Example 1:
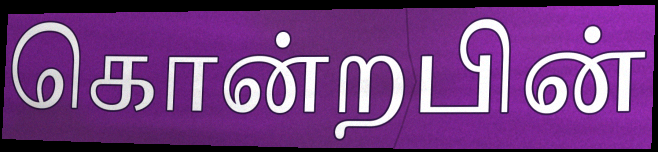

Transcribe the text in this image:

கொன்றபின்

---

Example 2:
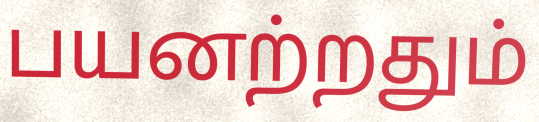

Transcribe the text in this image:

பயனற்றதும்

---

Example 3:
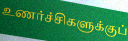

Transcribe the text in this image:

உணர்ச்சிகளுக்குப்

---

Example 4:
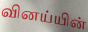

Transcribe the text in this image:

வினய்யின்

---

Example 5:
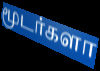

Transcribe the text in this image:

மூடர்களா